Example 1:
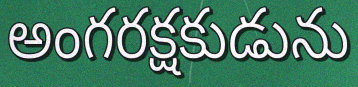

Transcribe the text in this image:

అంగరక్షకుడును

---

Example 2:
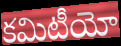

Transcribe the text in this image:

కమిటీయో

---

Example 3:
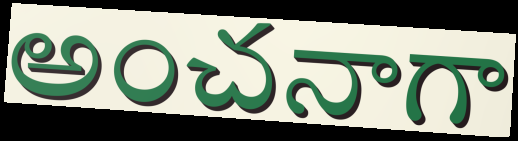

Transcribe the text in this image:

అంచనాగా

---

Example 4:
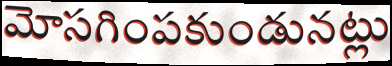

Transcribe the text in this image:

మోసగింపకుండునట్లు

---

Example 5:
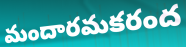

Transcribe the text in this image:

మందారమకరంద